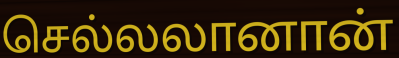
செல்லலானான்